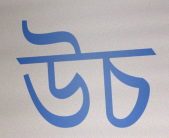
উচ